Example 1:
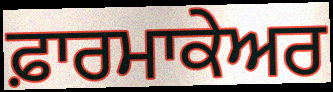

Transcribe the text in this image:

ਫ਼ਾਰਮਾਕੇਅਰ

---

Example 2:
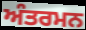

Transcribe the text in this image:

ਅੰਤਰਮਨ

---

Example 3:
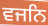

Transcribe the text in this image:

ਵਜਨਿ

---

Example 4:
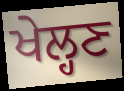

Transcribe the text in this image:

ਖੇਲ੍ਹਣ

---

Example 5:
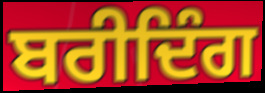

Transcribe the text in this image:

ਬਰੀਦਿੰਗ